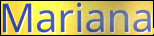
Mariana